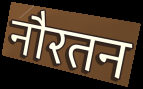
नौरतन